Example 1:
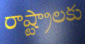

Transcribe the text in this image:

రాష్ట్రాలకు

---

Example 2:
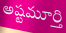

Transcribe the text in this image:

అష్టమూర్తి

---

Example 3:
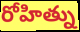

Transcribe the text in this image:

రోహిత్ను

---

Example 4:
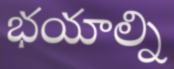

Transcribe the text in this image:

భయాల్ని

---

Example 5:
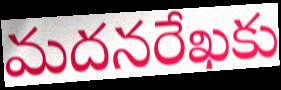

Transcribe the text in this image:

మదనరేఖకు